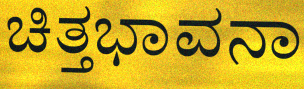
ಚಿತ್ತಭಾವನಾ